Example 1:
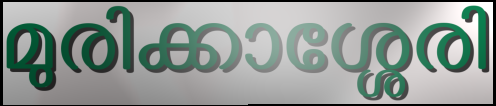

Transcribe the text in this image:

മുരിക്കാശ്ശേരി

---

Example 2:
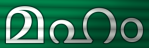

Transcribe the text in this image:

മഹം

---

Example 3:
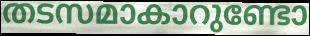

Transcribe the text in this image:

തടസമാകാറുണ്ടോ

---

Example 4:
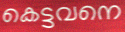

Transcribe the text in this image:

കെട്ടവനെ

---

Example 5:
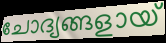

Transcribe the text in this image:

ചോദ്യങ്ങളായ്